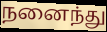
நனைந்து